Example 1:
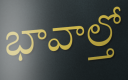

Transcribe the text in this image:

భావాల్తో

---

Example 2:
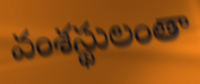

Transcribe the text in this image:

వంశస్థులంతా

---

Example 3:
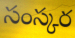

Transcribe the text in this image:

సంస్కర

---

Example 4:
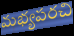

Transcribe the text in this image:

మభ్యపరచి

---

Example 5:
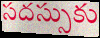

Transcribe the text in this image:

సదస్సుకు